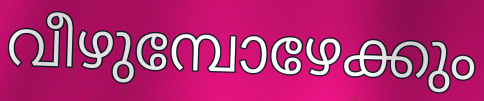
വീഴുമ്പോഴേക്കും